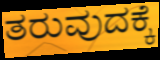
ತರುವುದಕ್ಕೆ